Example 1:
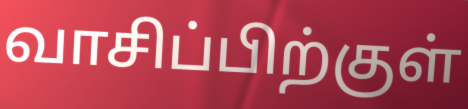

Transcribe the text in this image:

வாசிப்பிற்குள்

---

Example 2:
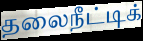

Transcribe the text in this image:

தலைநீட்டிக்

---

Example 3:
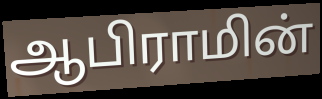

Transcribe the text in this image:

ஆபிராமின்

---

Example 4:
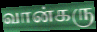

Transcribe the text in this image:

வான்கரு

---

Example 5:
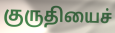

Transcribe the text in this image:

குருதியைச்